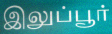
இலுப்பூர்